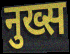
नुख्स